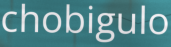
chobigulo